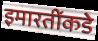
इमारतींकडे